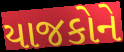
યાજકોને